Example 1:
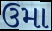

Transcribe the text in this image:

ઉમા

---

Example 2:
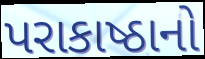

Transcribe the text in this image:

પરાકાષ્ઠાનો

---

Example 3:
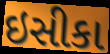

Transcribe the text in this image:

ઇસીકા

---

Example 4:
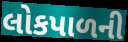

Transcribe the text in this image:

લોકપાળની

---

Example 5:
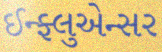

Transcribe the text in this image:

ઈન્ફ્લુએન્સર